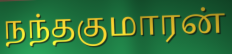
நந்தகுமாரன்